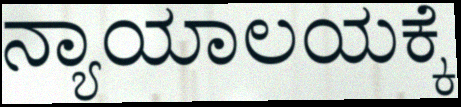
ನ್ಯಾಯಾಲಯಕ್ಕೆ